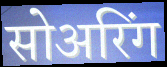
सोअरिंग